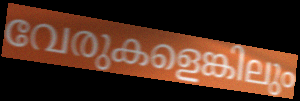
വേരുകളെങ്കിലും